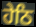
ਹੇਠਿ